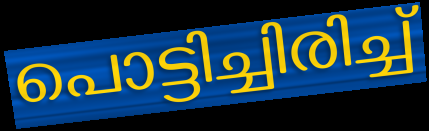
പൊട്ടിച്ചിരിച്ച്